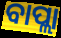
ବାପ୍ଲା